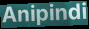
Anipindi